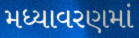
મધ્યાવરણમાં